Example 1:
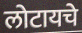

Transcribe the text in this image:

लोटायचे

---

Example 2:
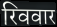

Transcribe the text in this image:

रिववार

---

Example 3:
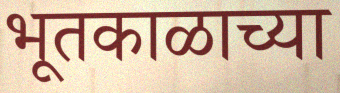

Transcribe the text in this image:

भूतकाळाच्या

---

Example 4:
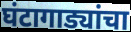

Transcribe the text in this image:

घंटागाड्यांचा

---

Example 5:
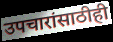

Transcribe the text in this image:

उपचारांसाठीही